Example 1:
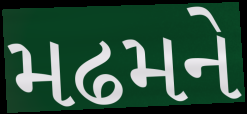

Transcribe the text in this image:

મઢમને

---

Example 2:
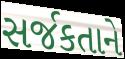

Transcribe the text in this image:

સર્જકતાને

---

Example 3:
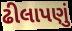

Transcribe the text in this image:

ઢીલાપણું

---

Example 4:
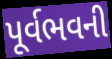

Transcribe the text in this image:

પૂર્વભવની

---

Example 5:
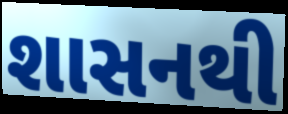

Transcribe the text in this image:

શાસનથી